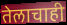
तेलाचाही